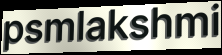
psmlakshmi